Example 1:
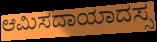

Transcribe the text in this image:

ಆಮಿಸದಾಯಾದಸ್ಸ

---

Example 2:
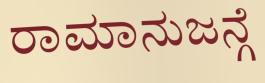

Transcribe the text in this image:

ರಾಮಾನುಜನ್ಗೆ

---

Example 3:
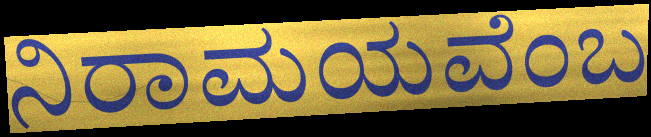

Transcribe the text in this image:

ನಿರಾಮಯವೆಂಬ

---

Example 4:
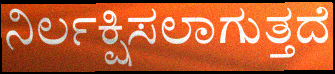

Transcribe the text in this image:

ನಿರ್ಲಕ್ಷಿಸಲಾಗುತ್ತದೆ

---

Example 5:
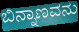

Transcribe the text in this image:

ಬಿನ್ನಾಣವನು